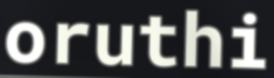
oruthi